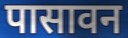
पासावन